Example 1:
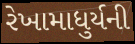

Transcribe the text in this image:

રેખામાધુર્યની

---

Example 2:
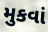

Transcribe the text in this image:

મુકવાં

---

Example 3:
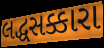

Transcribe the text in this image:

લદ્ધસક્કારા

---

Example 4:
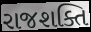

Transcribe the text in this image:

રાજશક્તિ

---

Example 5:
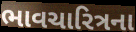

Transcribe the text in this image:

ભાવચારિત્રના